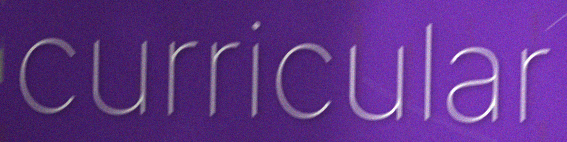
curricular